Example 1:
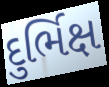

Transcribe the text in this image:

દુર્ભિક્ષ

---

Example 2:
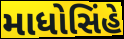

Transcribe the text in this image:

માધોસિંહે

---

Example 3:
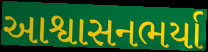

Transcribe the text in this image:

આશ્વાસનભર્યા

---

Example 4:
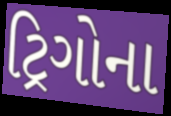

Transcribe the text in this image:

ટ્રિગોના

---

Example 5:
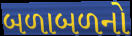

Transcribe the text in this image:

બળાબળનો